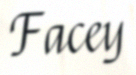
Facey